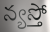
న్యస్తో